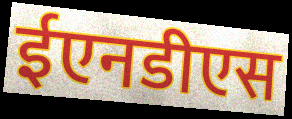
ईएनडीएस